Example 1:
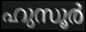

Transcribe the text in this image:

ഹുസൂർ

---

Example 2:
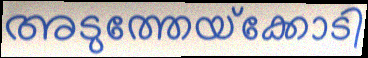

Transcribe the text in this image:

അടുത്തേയ്‌ക്കോടി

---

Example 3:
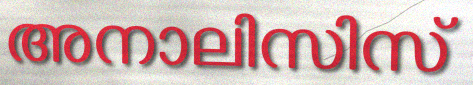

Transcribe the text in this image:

അനാലിസിസ്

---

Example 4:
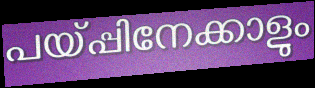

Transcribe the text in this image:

പയ്പ്പിനേക്കാളും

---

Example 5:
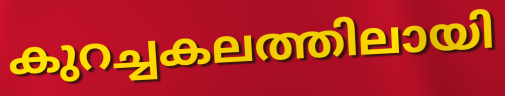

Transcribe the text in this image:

കുറച്ചകലത്തിലായി